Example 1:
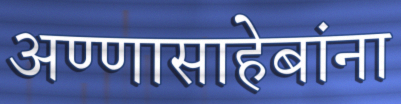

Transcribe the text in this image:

अण्णासाहेबांना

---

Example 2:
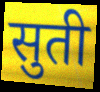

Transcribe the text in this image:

सुती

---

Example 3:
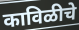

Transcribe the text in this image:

काविळीचे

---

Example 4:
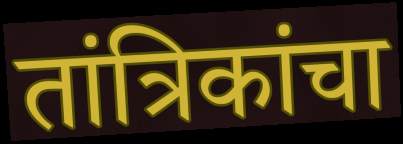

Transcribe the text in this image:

तांत्रिकांचा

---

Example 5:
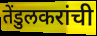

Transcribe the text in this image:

तेंडुलकरांची